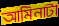
আমিনাটা